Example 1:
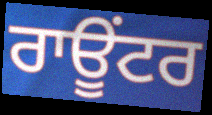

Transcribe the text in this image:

ਰਾਊਂਟਰ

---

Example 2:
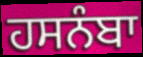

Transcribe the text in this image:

ਹਸਨੰਬਾ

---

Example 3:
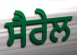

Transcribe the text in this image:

ਸੈਰੇਲ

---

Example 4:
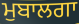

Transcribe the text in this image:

ਮੁਬਾਲਗਾ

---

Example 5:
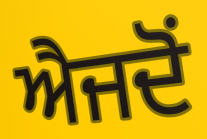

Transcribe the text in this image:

ਐਜਦੋਂ